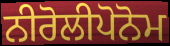
ਨੀਰੋਲੀਪੋਨੋਮ